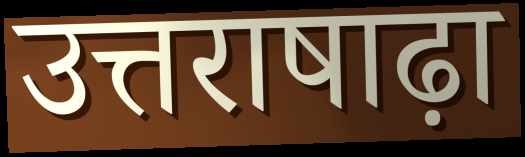
उत्तराषाढ़ा